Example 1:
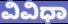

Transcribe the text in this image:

ವಿವಿಧಾ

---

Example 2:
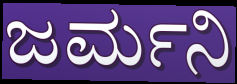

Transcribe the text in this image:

ಜರ್ಮನಿ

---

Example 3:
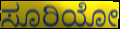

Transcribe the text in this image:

ಸೂರಿಯೋ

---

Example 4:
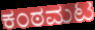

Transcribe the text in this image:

ಕಂಠಮಟ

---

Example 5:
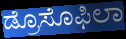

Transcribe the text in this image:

ಡ್ರೊಸೊಫಿಲಾ